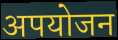
अपयोजन